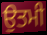
ਉਤਮੀ